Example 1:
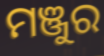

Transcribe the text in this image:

ମଞ୍ଜୁର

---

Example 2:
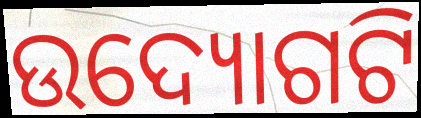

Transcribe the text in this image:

ଉଦ୍ୟୋଗଟି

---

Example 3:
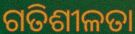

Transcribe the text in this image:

ଗତିଶୀଳତା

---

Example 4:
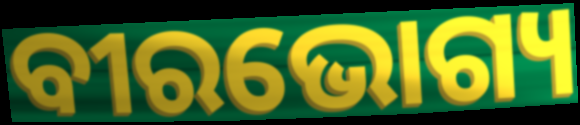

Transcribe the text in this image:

ବୀରଭୋଗ୍ୟ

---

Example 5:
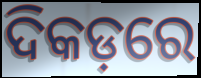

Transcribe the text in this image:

ଦିକଡ଼ରେ